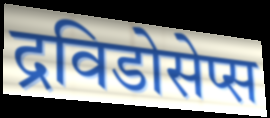
द्रविडोसेप्स